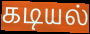
கடியல்